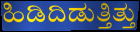
ಹಿಡಿದಿಡುತ್ತಿತ್ತು